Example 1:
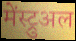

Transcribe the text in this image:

मेंस्ट्रुअल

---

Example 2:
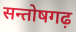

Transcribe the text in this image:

सन्तोषगढ़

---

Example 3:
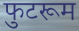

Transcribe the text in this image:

फुटरूम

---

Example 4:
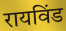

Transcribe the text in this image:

रायविंड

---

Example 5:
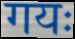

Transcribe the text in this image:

गयः